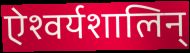
ऐश्वर्यशालिन्